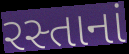
રસ્તાનાં